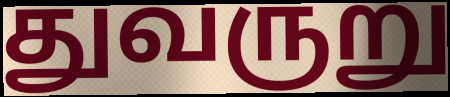
துவருறு